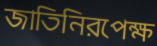
জাতিনিরপেক্ষ